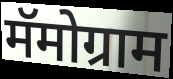
मॅमोग्राम